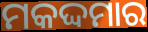
ମକଦ୍ଦମାର